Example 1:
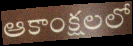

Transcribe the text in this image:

ఆకాంక్షలలో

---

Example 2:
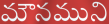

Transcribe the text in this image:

మౌనముని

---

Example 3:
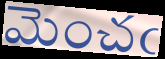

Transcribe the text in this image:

మెంచఁ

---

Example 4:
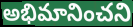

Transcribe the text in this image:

అభిమానించని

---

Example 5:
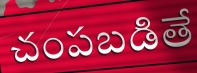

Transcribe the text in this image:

చంపబడితే